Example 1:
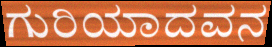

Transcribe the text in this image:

ಗುರಿಯಾದವನ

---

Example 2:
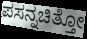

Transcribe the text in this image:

ಪಸನ್ನಚಿತ್ತೋ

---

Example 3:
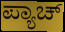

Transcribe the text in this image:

ಪ್ಯಾಚ್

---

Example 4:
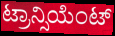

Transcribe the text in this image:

ಟ್ರಾನ್ಸಿಯೆಂಟ್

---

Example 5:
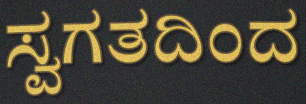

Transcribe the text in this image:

ಸ್ವಗತದಿಂದ